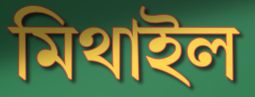
মিথাইল